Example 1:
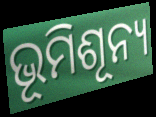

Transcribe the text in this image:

ଭୂମିଶୂନ୍ୟ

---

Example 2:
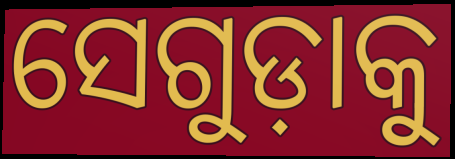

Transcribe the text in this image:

ସେଗୁଡ଼ାକୁ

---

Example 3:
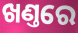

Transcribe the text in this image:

ଖଣ୍ତରେ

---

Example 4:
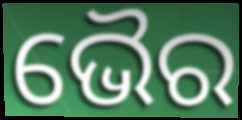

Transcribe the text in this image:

ଭୈର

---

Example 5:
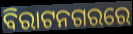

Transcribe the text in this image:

ବିରାଟନଗରରେ